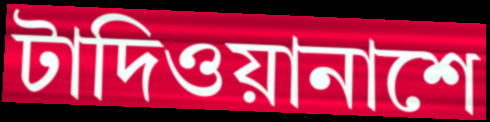
টাদিওয়ানাশে